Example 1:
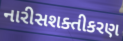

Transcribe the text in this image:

નારીસશક્તીકરણ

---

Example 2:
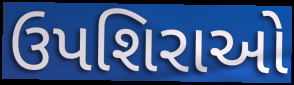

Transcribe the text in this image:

ઉપશિરાઓ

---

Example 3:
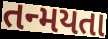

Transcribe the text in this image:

તન્મયતા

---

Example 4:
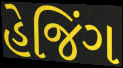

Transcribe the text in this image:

હેજિંગ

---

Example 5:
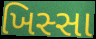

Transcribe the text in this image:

ખિસ્સા